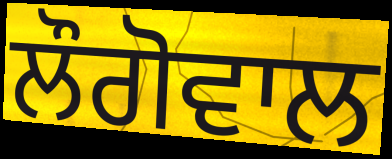
ਲੌਗੋਵਾਲ